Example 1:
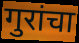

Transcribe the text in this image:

गुरांचा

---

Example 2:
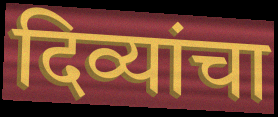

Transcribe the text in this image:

दिव्यांचा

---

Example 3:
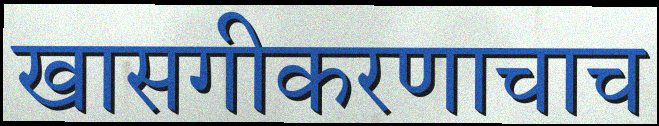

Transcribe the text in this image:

खासगीकरणाचाच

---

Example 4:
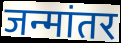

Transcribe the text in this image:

जन्मांतर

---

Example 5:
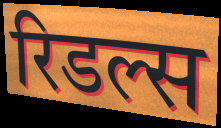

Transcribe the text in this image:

रिडल्स